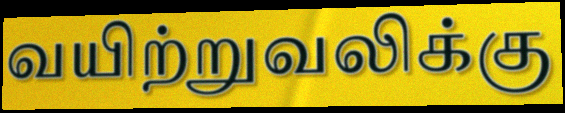
வயிற்றுவலிக்கு